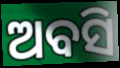
ଅବସି